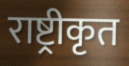
राष्ट्रीकृत